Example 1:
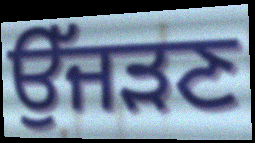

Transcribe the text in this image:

ਉੱਜੜਣ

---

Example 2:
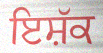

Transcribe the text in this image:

ਇਸ਼ੱਕ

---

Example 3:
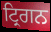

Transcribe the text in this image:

ਟ੍ਰਿਗਨ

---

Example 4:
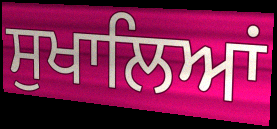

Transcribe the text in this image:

ਸੁਖਾਲਿਆਂ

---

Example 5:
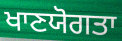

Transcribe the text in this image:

ਖਾਣਯੋਗਤਾ